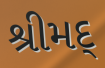
શ્રીમદ્‍